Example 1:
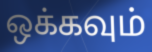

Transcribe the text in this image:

ஒக்கவும்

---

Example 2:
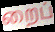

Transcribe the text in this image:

றைப்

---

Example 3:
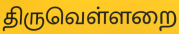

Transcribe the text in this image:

திருவெள்ளறை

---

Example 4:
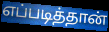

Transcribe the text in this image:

எப்படித்தான்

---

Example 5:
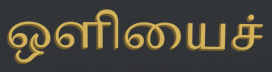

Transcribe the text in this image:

ஒளியைச்